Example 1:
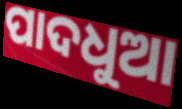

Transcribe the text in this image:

ପାଦଧୁଆ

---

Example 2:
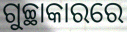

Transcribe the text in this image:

ଗୁଚ୍ଛାକାରରେ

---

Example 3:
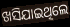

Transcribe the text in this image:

ଖସିଯାଇଥିଲେ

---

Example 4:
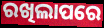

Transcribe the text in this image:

ରଖିଲାପରେ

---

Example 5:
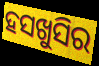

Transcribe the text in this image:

ହସଖୁସିର